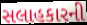
સલાહકારની